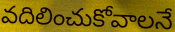
వదిలించుకోవాలనే